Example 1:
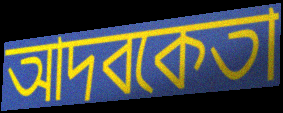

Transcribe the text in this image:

আদবকেতা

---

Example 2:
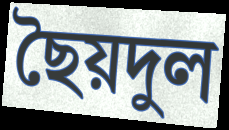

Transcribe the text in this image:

ছৈয়দুল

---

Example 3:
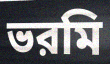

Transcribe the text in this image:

ভরমি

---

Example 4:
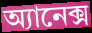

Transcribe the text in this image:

অ্যানেক্স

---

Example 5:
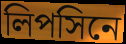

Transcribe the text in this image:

লিপসিনে